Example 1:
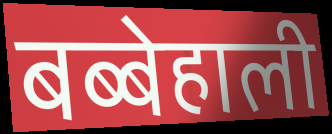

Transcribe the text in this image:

बब्बेहाली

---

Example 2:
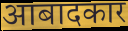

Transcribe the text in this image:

आबादकार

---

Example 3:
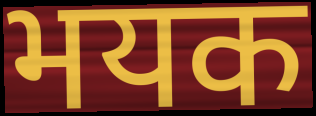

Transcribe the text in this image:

भयक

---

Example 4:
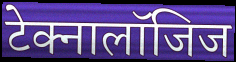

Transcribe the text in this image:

टेक्नालॉजिज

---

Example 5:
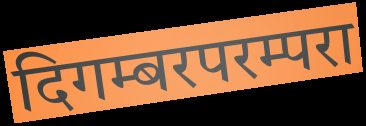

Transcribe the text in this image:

दिगम्बरपरम्परा